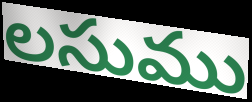
లసుము